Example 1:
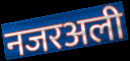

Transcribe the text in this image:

नजरअली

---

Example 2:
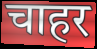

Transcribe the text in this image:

चाहर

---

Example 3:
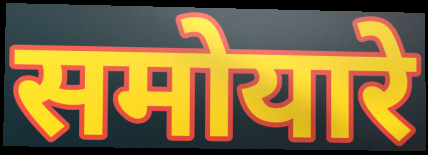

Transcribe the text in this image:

समोयारे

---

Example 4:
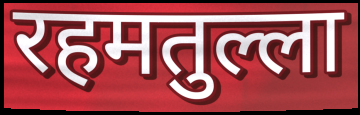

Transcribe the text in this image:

रहमतुल्ला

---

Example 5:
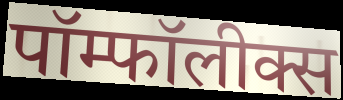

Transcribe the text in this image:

पॉम्फॉलीक्स